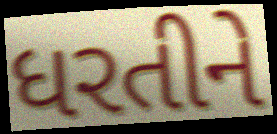
ધરતીને